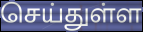
செய்துள்ள